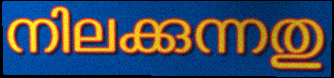
നിലക്കുന്നതു